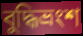
বুদ্ধিভ্রংশ